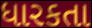
ધારકતા